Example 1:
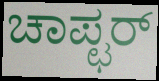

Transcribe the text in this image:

ಚಾಪ್ಟರ್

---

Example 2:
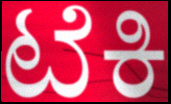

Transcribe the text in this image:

ಟೆಕಿ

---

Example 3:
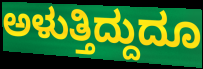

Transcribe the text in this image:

ಅಳುತ್ತಿದ್ದುದೂ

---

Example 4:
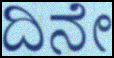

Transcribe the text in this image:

ದಿನೇ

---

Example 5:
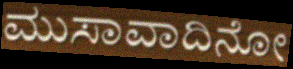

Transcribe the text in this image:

ಮುಸಾವಾದಿನೋ